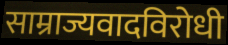
साम्राज्यवादविरोधी